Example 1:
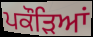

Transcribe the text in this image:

ਪਕੌਡ਼ਿਆਂ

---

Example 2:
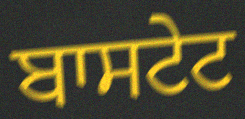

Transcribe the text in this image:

ਬਾਸਟੇਟ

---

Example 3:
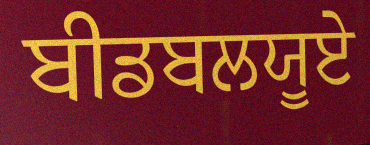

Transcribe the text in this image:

ਬੀਡਬਲਯੂਏ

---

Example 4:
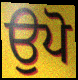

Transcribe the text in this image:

ਉਪੋ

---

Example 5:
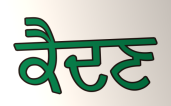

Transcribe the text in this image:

ਕੈਦਣ